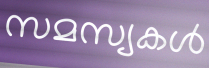
സമസ്യകൾ